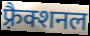
फ़्रैक्शनल